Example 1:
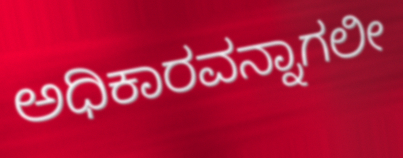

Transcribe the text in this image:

ಅಧಿಕಾರವನ್ನಾಗಲೀ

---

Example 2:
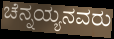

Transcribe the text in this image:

ಚೆನ್ನಯ್ಯನವರು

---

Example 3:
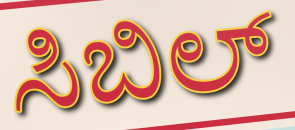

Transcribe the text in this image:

ಸಿಬಿಲ್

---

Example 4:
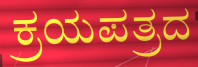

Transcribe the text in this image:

ಕ್ರಯಪತ್ರದ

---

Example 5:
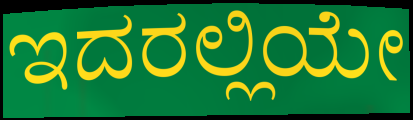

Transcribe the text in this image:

ಇದರಲ್ಲಿಯೇ